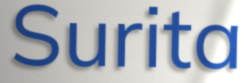
Surita